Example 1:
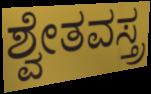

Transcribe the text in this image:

ಶ್ವೇತವಸ್ತ್ರ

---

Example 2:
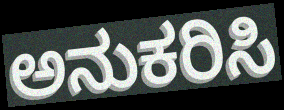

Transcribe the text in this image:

ಅನುಕರಿಸಿ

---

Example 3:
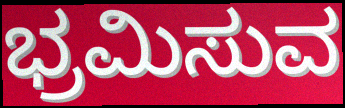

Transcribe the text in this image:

ಭ್ರಮಿಸುವ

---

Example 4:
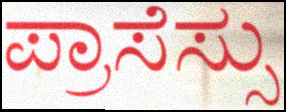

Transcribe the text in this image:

ಪ್ರಾಸೆಸ್ಸು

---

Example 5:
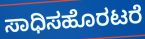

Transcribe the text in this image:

ಸಾಧಿಸಹೊರಟರೆ